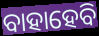
ବାହାହେବି